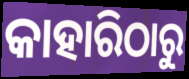
କାହାରିଠାରୁ